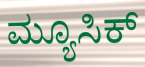
ಮ್ಯೂಸಿಕ್